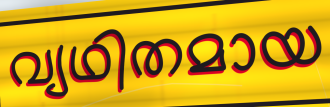
വ്യഥിതമായ